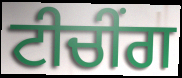
ਟੀਚੀਂਗ